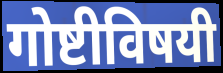
गोष्टीविषयी